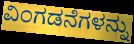
ವಿಂಗಡನೆಗಳನ್ನು